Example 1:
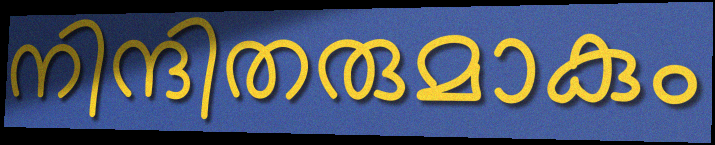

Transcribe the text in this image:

നിന്ദിതരുമാകും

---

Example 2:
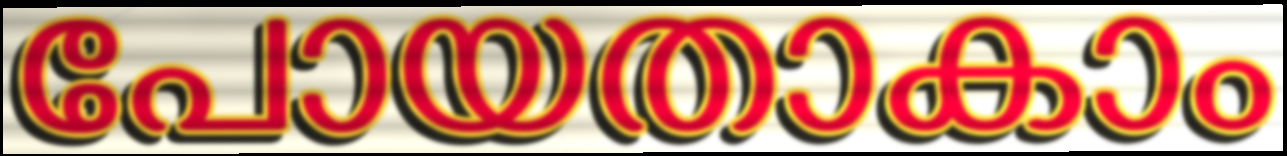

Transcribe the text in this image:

പോയതാകാം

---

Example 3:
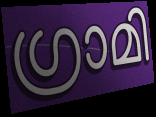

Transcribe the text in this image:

ഗ്രാമി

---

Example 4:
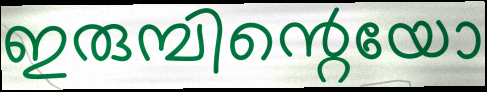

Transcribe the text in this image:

ഇരുമ്പിന്റെയോ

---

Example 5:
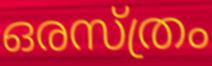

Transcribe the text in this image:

ഒരസ്ത്രം